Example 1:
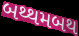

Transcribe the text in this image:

બથ્થમબથ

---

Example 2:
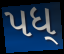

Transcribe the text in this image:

પધ્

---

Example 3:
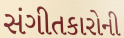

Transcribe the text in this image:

સંગીતકારોની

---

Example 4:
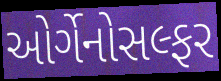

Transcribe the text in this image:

ઓર્ગેનોસલ્ફર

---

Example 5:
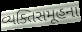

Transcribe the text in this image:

વ્યક્તિસમૂહના